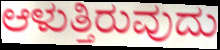
ಆಳುತ್ತಿರುವುದು